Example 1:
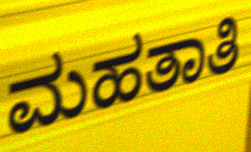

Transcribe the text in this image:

ಮಹತಾತಿ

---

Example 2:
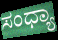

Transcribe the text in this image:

ಸಂಧ್ಯಾ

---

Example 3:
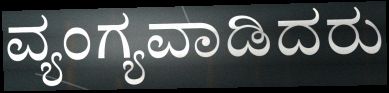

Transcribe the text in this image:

ವ್ಯಂಗ್ಯವಾಡಿದರು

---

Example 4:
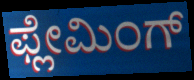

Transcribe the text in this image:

ಫ್ಲೇಮಿಂಗ್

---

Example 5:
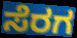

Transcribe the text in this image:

ಸೆರಗ